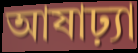
আষাঢ়্যা